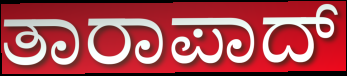
ತಾರಾಪಾದ್